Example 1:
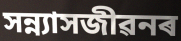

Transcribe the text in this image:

সন্ন্যাসজীৱনৰ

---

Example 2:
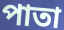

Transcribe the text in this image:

পাতা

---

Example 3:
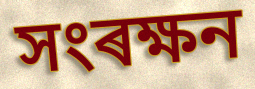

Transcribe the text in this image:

সংৰক্ষন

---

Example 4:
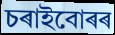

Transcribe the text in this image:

চৰাইবোৰৰ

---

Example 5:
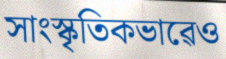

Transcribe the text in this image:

সাংস্কৃতিকভাৱেও